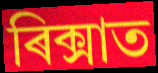
ৰিক্সাত